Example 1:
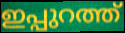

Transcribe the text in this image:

ഇപ്പുറത്ത്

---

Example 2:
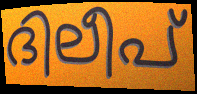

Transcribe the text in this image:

ദിലീപ്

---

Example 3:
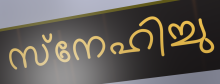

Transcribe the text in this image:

സ്‌നേഹിച്ചു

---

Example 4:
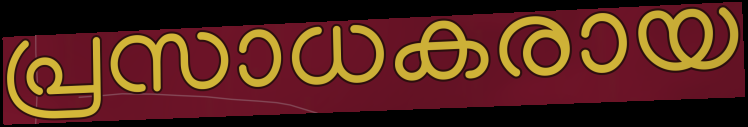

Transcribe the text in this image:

പ്രസാധകരായ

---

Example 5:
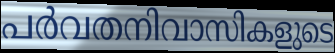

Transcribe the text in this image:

പർവതനിവാസികളുടെ